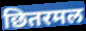
छितरमल